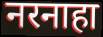
नरनाहा